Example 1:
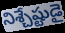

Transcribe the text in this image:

నిశ్చేష్టుడై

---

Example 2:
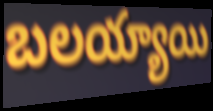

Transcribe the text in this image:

బలయ్యాయి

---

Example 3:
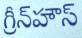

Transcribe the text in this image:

గ్రీన్‌హౌస్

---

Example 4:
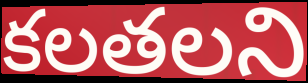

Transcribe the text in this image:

కలతలని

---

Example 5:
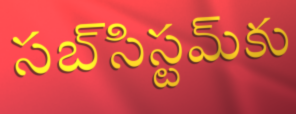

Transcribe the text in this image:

సబ్‌సిస్టమ్‌కు